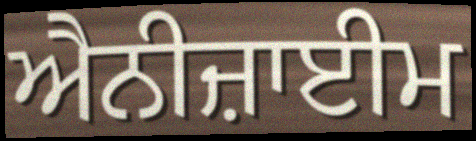
ਐਨੀਜ਼ਾਈਮ